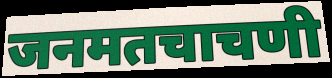
जनमतचाचणी